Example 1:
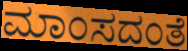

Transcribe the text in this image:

ಮಾಂಸದಂತೆ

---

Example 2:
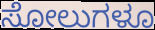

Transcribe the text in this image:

ಸೋಲುಗಳೂ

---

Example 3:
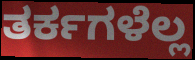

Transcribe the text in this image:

ತರ್ಕಗಳೆಲ್ಲ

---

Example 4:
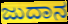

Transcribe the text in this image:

ಜುದಾನ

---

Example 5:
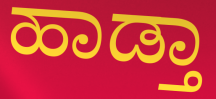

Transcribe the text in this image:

ಹಾಡ್ತಾ